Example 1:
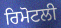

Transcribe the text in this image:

ਰਿਮੋਟਲੀ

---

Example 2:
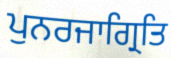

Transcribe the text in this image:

ਪੁਨਰਜਾਗ੍ਰਿਤਿ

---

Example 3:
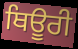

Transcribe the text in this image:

ਥਿਊਰੀ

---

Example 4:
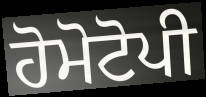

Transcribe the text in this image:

ਹੋਮੋਟੋਪੀ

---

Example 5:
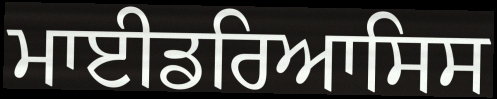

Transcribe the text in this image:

ਮਾਈਡਰਿਆਸਿਸ